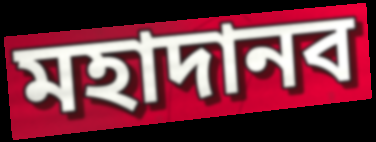
মহাদানব